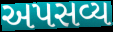
અપસવ્ય